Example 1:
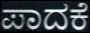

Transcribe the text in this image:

ಪಾದಕೆ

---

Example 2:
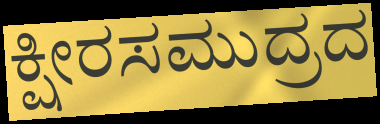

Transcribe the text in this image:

ಕ್ಷೀರಸಮುದ್ರದ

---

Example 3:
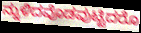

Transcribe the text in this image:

ನ್ನುಳಿದವೊಡವುಟ್ಟಿದರೊ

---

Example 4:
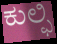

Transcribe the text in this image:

ಕುಲ್ಫಿ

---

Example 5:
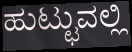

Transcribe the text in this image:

ಹುಟ್ಟುವಲ್ಲಿ